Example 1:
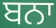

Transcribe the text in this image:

ਬਨਾ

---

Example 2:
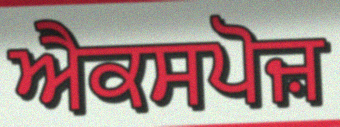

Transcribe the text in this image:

ਐਕਸਪੋਜ਼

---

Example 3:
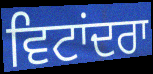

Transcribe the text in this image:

ਵਿਟਾਂਦਰਾ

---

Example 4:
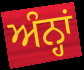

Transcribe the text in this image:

ਅੰਨ੍ਹਾਂ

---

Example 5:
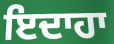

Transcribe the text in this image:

ਇਦਾਹਾ